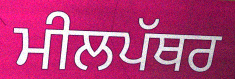
ਮੀਲਪੱਥਰ